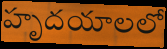
హృదయాలలో